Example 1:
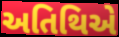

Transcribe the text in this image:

અતિથિએ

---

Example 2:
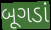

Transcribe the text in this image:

બૂગડાં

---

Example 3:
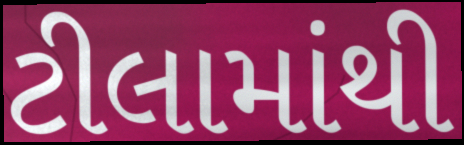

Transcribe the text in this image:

ટીલામાંથી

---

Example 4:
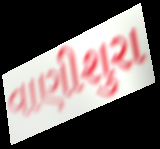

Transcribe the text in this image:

વાણીશુરા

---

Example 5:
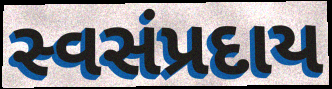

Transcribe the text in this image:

સ્વસંપ્રદાય